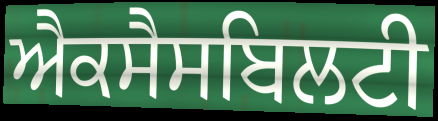
ਐਕਸੈਸਬਿਲਟੀ